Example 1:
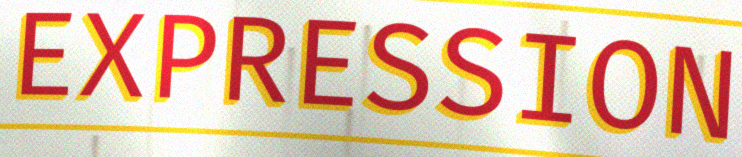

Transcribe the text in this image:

EXPRESSION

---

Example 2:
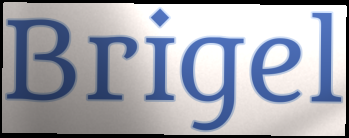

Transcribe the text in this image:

Brigel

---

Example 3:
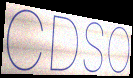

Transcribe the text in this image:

CDSO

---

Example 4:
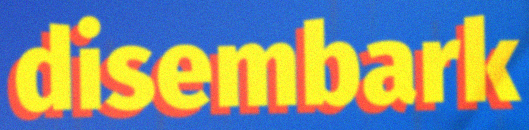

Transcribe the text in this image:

disembark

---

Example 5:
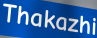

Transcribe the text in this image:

Thakazhi